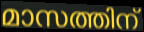
മാസത്തിന്